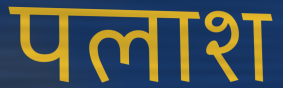
पलाश